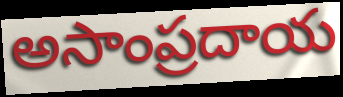
అసాంప్రదాయ